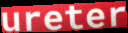
ureter